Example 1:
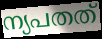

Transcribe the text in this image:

ന്യപതത്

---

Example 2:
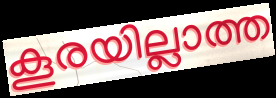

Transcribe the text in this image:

കൂരയില്ലാത്ത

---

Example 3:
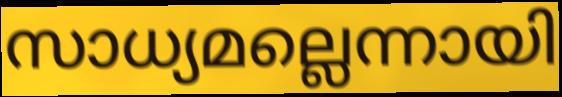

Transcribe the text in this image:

സാധ്യമല്ലെന്നായി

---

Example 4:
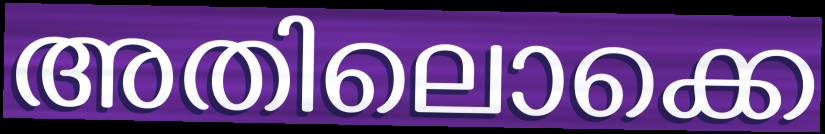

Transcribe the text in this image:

അതിലൊക്കെ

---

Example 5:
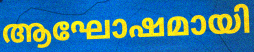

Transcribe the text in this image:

ആഘോഷമായി